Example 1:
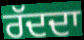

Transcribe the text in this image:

ਰੱਦਦਾ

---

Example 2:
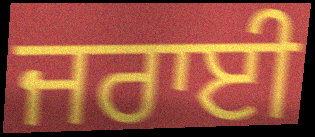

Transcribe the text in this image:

ਜਰਾਈ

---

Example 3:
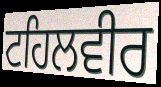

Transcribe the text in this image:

ਟਹਿਲਵੀਰ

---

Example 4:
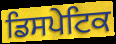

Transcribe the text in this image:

ਡਿਸਪੇਟਿਕ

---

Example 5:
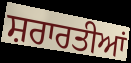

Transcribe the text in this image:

ਸ਼ਰਾਰਤੀਆਂ